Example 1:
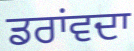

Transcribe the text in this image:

ਡਰਾਂਵਦਾ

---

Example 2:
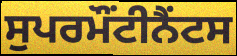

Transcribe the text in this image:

ਸੁਪਰਮੌਂਟੀਨੈਂਟਸ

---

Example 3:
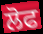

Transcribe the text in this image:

ਲੋਫ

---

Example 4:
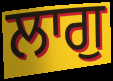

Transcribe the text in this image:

ਲਾਗੁ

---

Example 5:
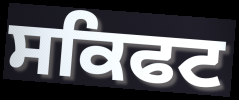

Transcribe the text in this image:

ਸਕਿਫਟ